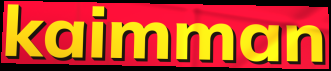
kaimman